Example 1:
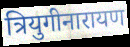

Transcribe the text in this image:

त्रियुगीनारायण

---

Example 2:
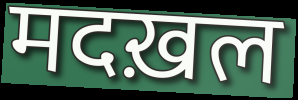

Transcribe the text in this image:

मदख़ल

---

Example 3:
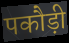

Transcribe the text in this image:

पकौड़ी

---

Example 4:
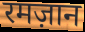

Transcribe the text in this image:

रमज़ान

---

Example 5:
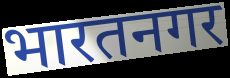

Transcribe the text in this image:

भारतनगर